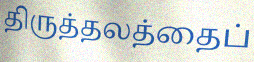
திருத்தலத்தைப்